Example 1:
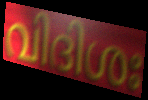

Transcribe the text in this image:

വിദിശഃ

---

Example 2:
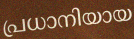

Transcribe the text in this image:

പ്രധാനിയായ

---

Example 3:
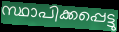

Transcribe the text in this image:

സ്ഥാപിക്കപ്പെട്ടു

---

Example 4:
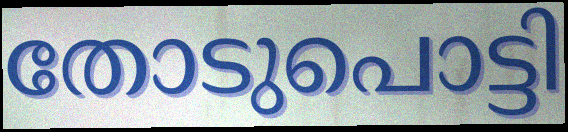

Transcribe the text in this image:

തോടുപൊട്ടി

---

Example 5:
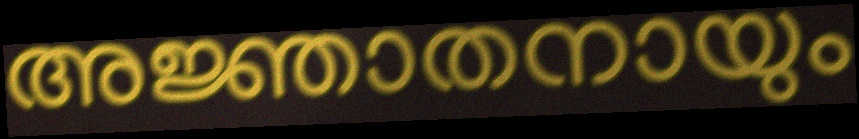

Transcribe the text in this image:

അജ്ഞാതനായും